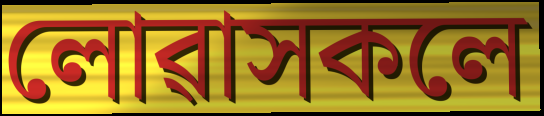
লোৱাসকলে